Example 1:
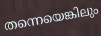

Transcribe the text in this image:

തന്നെയെങ്കിലും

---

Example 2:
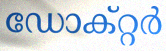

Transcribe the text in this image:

ഡോക്റ്റർ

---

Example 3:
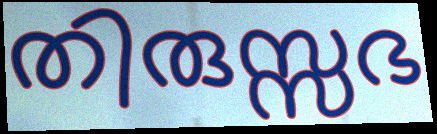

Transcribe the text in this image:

തിരുസ്സഭ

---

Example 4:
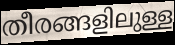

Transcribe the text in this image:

തീരങ്ങളിലുള്ള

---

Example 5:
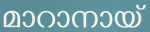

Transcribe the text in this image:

മാറാനായ്